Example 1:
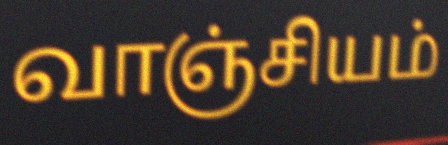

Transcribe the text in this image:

வாஞ்சியம்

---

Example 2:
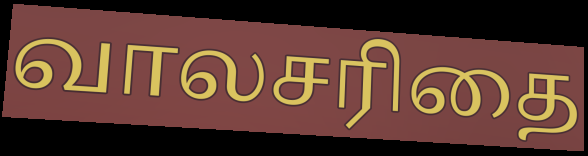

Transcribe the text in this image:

வாலசரிதை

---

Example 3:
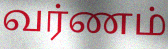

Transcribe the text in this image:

வர்ணம்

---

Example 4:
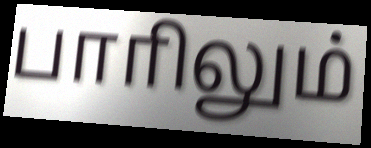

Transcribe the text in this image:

பாரிலும்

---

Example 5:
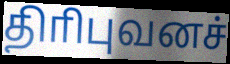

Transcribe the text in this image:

திரிபுவனச்